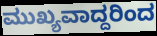
ಮುಖ್ಯವಾದ್ದರಿಂದ